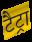
टैट्रा